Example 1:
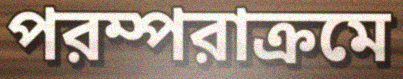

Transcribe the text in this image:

পরম্পরাক্রমে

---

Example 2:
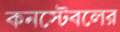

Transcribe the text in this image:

কনস্টেবলের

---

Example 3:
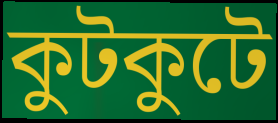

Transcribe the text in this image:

কুটকুটে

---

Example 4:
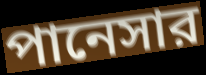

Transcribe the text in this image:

পানেসার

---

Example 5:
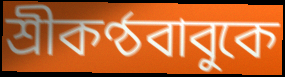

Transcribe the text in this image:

শ্রীকণ্ঠবাবুকে